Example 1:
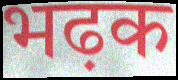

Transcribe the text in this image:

भढ़क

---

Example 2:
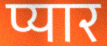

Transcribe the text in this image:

प्‍यार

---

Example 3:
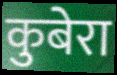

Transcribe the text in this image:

कुबेरा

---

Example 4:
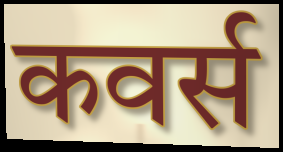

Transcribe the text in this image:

कवर्स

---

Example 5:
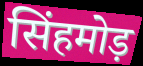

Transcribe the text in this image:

सिंहमोड़